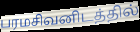
பரமசிவனிடத்தில்